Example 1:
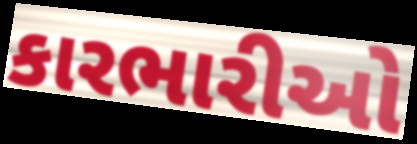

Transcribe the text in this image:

કારભારીઓ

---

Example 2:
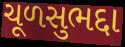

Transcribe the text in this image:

ચૂળસુભદ્દા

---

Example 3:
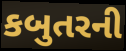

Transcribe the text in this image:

કબુતરની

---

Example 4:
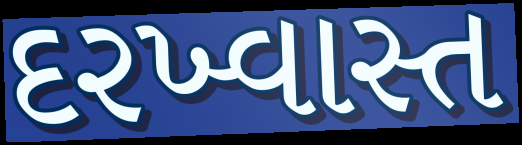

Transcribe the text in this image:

દરખ્વાસ્ત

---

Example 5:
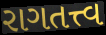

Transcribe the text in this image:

રાગતત્ત્વ